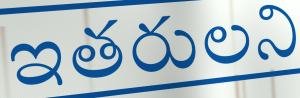
ఇతరులని